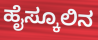
ಹೈಸ್ಕೂಲಿನ